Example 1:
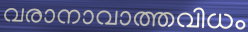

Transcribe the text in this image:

വരാനാവാത്തവിധം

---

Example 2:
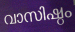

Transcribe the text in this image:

വാസിഷ്ഠം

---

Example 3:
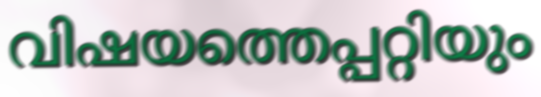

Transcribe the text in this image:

വിഷയത്തെപ്പറ്റിയും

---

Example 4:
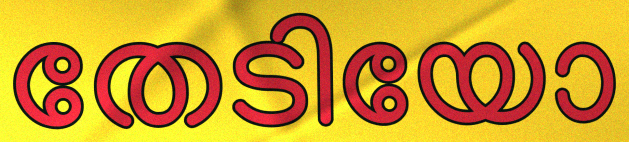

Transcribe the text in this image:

തേടിയോ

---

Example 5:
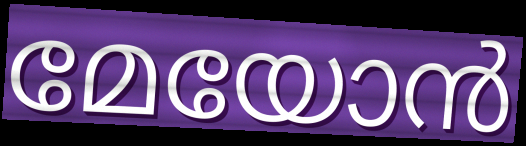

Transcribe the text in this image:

മേയോൻ